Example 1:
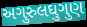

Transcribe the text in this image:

અગુરુલઘુગુણ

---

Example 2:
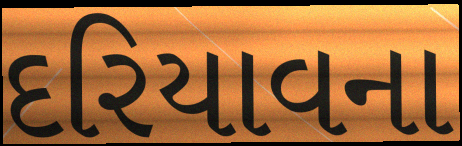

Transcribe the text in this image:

દરિયાવના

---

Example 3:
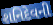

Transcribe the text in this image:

શનિદેવની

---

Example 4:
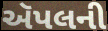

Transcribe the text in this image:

ઍપલની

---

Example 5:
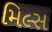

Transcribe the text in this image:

મિલ્સ